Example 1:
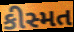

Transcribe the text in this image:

કીસ્મત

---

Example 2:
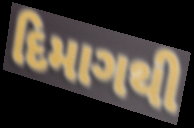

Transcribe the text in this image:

દિમાગથી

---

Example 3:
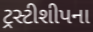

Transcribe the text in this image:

ટ્રસ્ટીશીપના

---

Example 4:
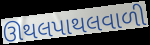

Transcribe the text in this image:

ઊથલપાથલવાળી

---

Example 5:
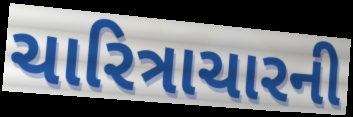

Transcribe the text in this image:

ચારિત્રાચારની